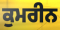
ਕੁਮਰੀਨ